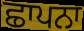
ਛਾਪਨਾ